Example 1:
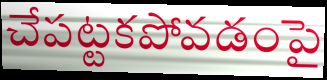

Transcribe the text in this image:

చేపట్టకపోవడంపై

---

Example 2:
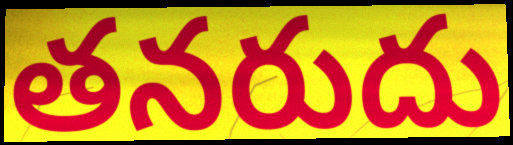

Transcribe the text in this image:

తనరుదు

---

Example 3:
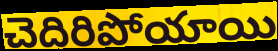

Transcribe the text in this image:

చెదిరిపోయాయి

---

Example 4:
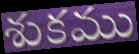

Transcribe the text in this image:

శుకము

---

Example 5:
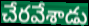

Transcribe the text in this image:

చేరవేశాడు